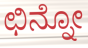
ಛಿನ್ನೋ